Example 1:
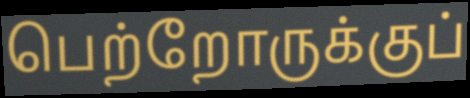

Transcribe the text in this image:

பெற்றோருக்குப்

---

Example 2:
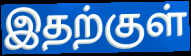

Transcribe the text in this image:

இதற்குள்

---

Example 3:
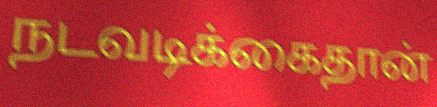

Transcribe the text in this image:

நடவடிக்கைதான்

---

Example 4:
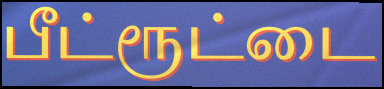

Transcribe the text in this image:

பீட்ரூட்டை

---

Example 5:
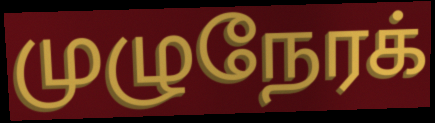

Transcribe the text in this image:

முழுநேரக்